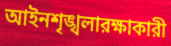
আইনশৃঙ্খলারক্ষাকারী